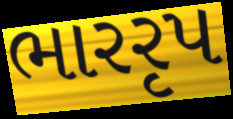
ભારરૃપ